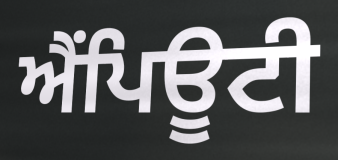
ਐਂਪਿਊਟੀ